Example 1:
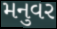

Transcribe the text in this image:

મનુવર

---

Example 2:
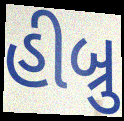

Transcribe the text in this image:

હીબ્રુ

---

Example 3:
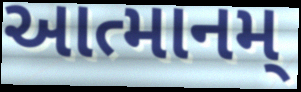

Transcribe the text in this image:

આત્માનમ્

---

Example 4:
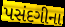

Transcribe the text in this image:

પસંદગીના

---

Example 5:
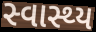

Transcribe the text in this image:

સ્વાસ્થ્ય